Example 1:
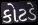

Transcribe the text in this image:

કોટડે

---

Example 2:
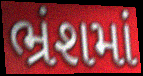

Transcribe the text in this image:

ભ્રંશમાં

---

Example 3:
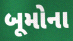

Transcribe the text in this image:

બૂમોના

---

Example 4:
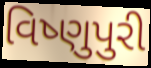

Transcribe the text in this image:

વિષ્ણુપુરી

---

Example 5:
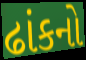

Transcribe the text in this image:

ઢાંકનો